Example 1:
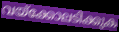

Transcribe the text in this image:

വയ്ക്കോലടിക്കുക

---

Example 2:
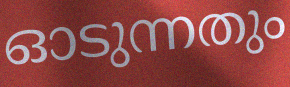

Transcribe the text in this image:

ഓടുന്നതും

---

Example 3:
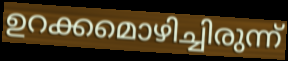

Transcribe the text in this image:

ഉറക്കമൊഴിച്ചിരുന്ന്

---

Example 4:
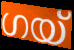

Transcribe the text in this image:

ഗയ്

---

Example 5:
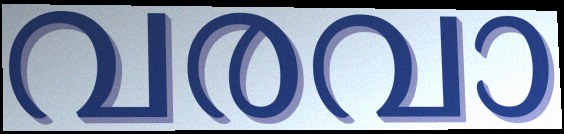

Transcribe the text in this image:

വരവാ